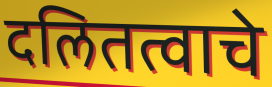
दलितत्वाचे